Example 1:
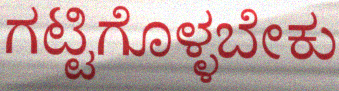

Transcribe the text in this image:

ಗಟ್ಟಿಗೊಳ್ಳಬೇಕು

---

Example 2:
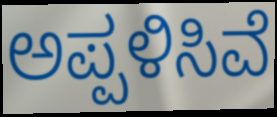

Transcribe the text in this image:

ಅಪ್ಪಳಿಸಿವೆ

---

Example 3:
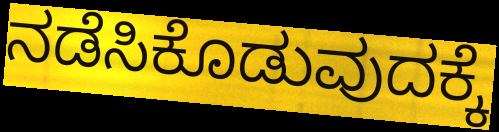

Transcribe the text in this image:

ನಡೆಸಿಕೊಡುವುದಕ್ಕೆ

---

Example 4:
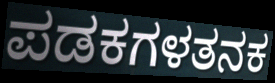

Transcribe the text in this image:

ಪಡಕಗಳತನಕ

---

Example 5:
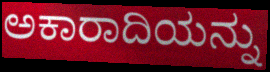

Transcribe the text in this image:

ಅಕಾರಾದಿಯನ್ನು